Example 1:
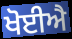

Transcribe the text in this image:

ਖੋਈਐ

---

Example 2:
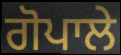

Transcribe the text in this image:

ਗੋਪਾਲੇ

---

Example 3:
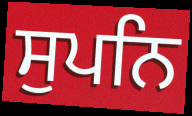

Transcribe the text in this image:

ਸੁਪਨਿ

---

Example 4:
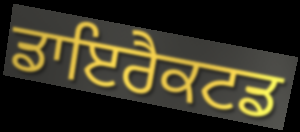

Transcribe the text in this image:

ਡਾਇਰੈਕਟਡ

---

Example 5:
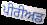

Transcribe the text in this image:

ਪੀਰੀਅਡ